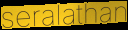
seralathan